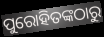
ପୁରୋହିତଙ୍କଠାରୁ